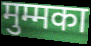
मुम्मका